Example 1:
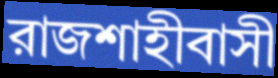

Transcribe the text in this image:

রাজশাহীবাসী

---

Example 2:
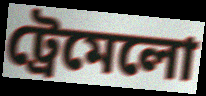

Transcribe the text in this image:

ট্রেমেলো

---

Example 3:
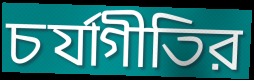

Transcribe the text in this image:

চর্যাগীতির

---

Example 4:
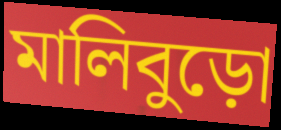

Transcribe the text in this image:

মালিবুড়ো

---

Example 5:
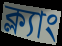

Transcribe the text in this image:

ক্ল্যাং